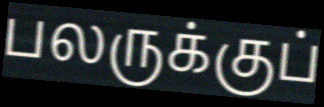
பலருக்குப்